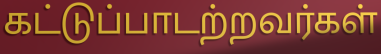
கட்டுப்பாடற்றவர்கள்